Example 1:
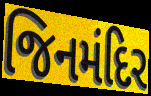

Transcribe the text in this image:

જિનમંદિર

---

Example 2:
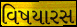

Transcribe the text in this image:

વિષયારસ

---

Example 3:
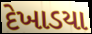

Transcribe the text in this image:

દેખાડયા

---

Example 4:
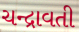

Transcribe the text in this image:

ચન્દ્રાવતી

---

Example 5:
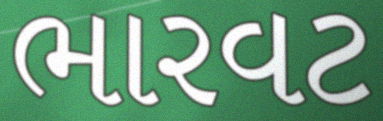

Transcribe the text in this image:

ભારવટ